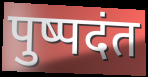
पुष्पदंत